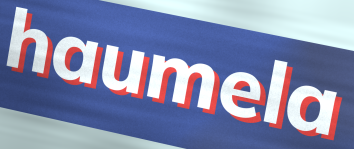
haumela